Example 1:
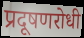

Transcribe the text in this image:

प्रदूषणरोधी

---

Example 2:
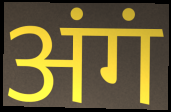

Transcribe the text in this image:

अंगं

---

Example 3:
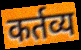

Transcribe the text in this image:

कर्तव्य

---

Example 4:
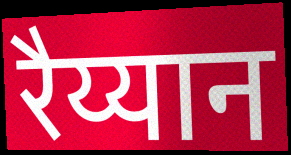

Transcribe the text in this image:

रैय्यान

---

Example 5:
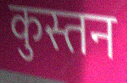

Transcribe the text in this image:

कुस्तन